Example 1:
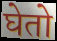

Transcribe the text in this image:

घेतो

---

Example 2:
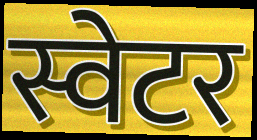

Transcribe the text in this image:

स्वेटर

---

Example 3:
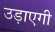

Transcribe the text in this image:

उड़ाएगी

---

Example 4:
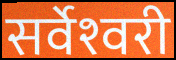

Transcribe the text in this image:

सर्वेश्वरी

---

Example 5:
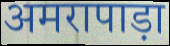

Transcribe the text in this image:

अमरापाड़ा